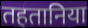
तहतानिया